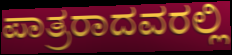
ಪಾತ್ರರಾದವರಲ್ಲಿ